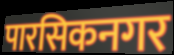
पारसिकनगर